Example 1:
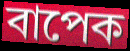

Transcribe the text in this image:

বাপেক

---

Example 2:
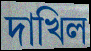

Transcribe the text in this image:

দাখিল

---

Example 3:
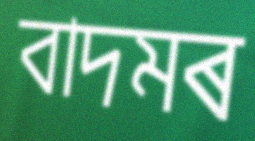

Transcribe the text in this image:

বাদমৰ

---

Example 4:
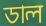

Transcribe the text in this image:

ডাল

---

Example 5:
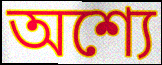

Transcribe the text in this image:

অশ্যে